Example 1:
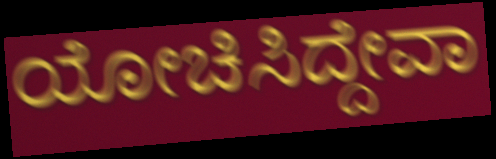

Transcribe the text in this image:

ಯೋಚಿಸಿದ್ದೇವಾ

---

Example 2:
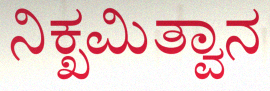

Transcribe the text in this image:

ನಿಕ್ಖಮಿತ್ವಾನ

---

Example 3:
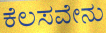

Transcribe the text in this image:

ಕೆಲಸವೇನು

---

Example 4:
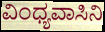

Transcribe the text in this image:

ವಿಂಧ್ಯವಾಸಿನಿ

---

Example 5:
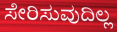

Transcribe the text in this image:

ಸೇರಿಸುವುದಿಲ್ಲ